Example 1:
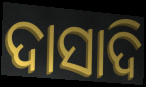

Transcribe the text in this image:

ଦାସାଦି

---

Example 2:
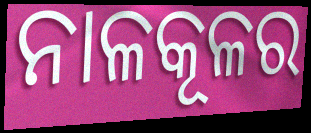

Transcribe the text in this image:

ନାଳକୂଳର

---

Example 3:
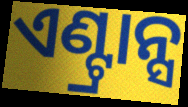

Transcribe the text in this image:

ଏଣ୍ଟ୍ରାନ୍ସ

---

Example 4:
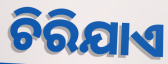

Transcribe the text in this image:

ଚିରିଯାଏ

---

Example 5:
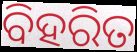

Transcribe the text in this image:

ବିହରିତ